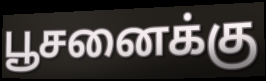
பூசனைக்கு